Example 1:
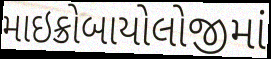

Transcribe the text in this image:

માઇક્રોબાયોલોજીમાં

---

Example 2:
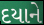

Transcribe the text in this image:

દયાને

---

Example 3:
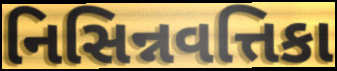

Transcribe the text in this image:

નિસિન્નવત્તિકા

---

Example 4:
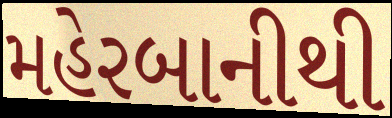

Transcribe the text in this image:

મહેરબાનીથી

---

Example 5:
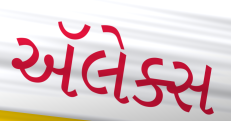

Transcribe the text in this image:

ઍલેક્સ